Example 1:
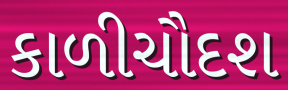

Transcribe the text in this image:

કાળીચૌદશ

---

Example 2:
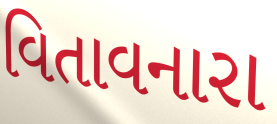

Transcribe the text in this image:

વિતાવનારા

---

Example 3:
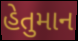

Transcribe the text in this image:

હેતુમાન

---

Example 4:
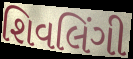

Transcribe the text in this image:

શિવલિંગી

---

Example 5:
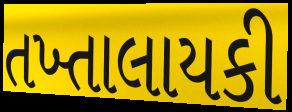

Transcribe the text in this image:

તખ્તાલાયકી